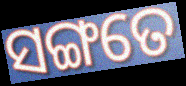
ସଙ୍ଗତେ